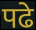
पढे